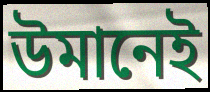
উমানেই